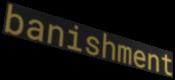
banishment